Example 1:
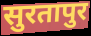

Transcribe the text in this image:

सुरतापुर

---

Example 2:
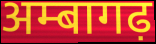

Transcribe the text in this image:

अम्बागढ़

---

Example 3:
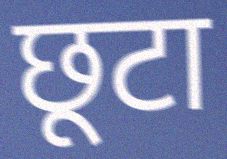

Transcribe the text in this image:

छूटा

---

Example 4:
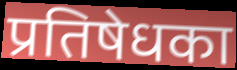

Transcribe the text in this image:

प्रतिषेधका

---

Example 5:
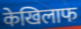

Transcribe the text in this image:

केखिलाफ